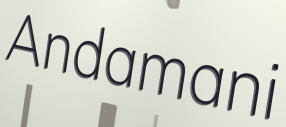
Andamani